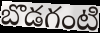
బొడగంటి